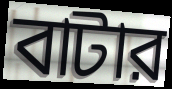
বাটার